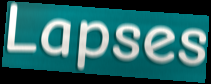
Lapses